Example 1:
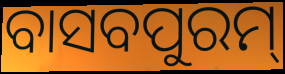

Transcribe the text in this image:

ବାସବପୁରମ୍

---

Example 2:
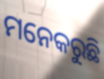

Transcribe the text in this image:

ମନେକରୁଛି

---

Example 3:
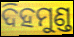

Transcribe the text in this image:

ଦିହମୁଣ୍ଡ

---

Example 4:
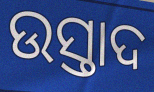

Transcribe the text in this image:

ଉସ୍ତାଦ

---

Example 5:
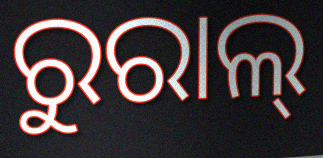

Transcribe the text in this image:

ରୁରାଲ୍